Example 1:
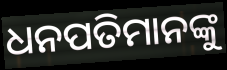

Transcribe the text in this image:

ଧନପତିମାନଙ୍କୁ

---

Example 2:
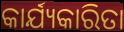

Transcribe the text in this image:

କାର୍ଯ୍ୟକାରିତା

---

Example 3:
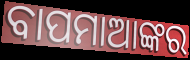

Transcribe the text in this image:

ବାପମାଆଙ୍କର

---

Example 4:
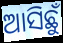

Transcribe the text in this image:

ଆସିଛୁଁ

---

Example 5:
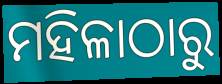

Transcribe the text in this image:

ମହିଳାଠାରୁ